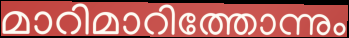
മാറിമാറിത്തോന്നും